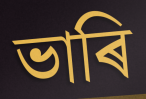
ভাৰি